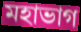
মহাভাগ